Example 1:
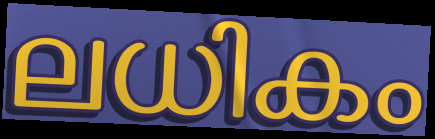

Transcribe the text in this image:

ലധികം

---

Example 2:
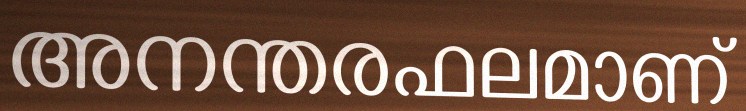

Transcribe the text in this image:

അനന്തരഫലമാണ്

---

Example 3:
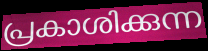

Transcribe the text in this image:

പ്രകാശിക്കുന്ന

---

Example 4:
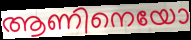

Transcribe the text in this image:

ആണിനെയോ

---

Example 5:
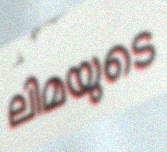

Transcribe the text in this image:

ലിമയുടെ